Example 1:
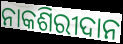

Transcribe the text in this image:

ନାକଶିରୀଦାନ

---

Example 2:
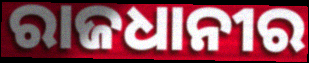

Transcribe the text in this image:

ରାଜଧାନୀର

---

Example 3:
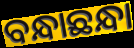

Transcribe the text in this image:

ବନ୍ଧାଛନ୍ଧା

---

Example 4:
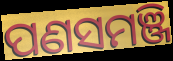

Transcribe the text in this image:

ପଣସମଞ୍ଜି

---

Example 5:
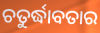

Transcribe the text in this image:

ଚତୁର୍ଦ୍ଧାବତାର